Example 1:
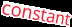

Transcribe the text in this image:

constant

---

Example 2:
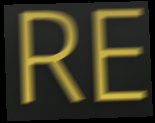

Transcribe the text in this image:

RE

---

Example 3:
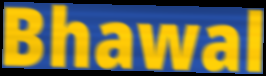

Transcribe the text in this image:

Bhawal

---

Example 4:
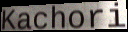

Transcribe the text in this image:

Kachori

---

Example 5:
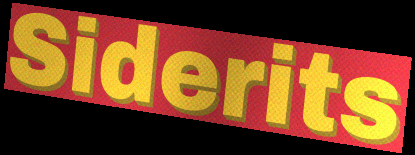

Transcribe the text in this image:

Siderits